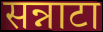
सन्नाटा